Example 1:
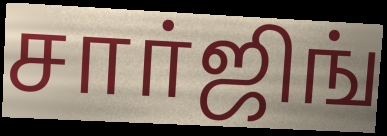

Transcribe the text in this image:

சார்ஜிங்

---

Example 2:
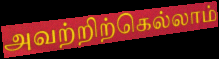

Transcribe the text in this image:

அவற்றிற்கெல்லாம்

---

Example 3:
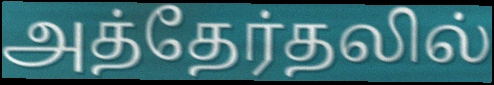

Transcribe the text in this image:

அத்தேர்தலில்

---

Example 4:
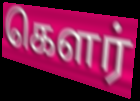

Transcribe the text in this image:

கௌர்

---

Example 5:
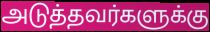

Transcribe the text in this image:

அடுத்தவர்களுக்கு